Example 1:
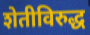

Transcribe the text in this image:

शेतीविरुद्ध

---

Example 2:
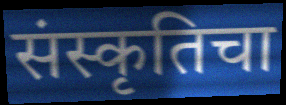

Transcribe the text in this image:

संस्कृतिचा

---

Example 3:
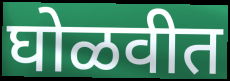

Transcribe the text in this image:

घोळवीत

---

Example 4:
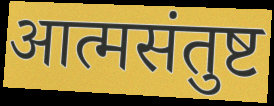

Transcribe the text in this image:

आत्मसंतुष्ट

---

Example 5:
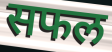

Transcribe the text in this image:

सफल